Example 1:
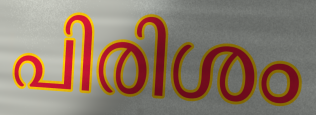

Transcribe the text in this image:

പിരിശം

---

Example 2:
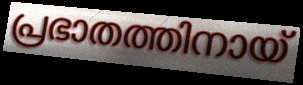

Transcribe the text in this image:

പ്രഭാതത്തിനായ്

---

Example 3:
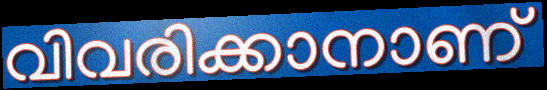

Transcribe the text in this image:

വിവരിക്കാനാണ്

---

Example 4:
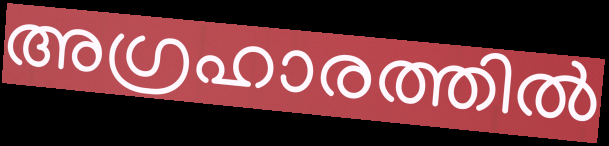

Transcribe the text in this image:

അഗ്രഹാരത്തിൽ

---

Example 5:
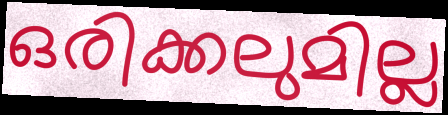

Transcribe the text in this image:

ഒരിക്കലുമില്ല